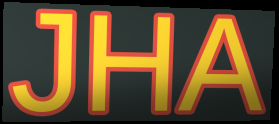
JHA